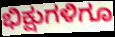
ಭಿಕ್ಷುಗಳಿಗೂ